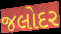
જલોદર